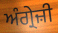
ਅੰਗ੍ਰੇਜ਼ੀ